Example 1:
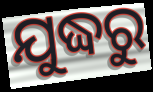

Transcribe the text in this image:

ଯୁଦ୍ଧରୁ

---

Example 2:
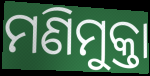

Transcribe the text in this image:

ମଣିମୁକ୍ତା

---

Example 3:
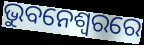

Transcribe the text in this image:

ଭୁବନେଶ୍ଵରରେ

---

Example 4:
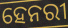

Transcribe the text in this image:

ହେନରୀ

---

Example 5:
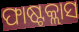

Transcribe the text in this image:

ଫାଷ୍ଟକ୍ଲାସ